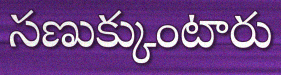
సణుక్కుంటారు